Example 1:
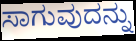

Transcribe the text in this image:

ಸಾಗುವುದನ್ನು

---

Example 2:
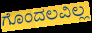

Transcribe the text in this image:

ಗೊಂದಲವಿಲ್ಲ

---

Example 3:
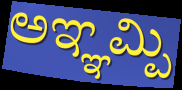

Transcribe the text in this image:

ಅಞ್ಞಮ್ಪಿ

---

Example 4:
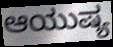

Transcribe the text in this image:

ಆಯುಷ್ಯ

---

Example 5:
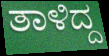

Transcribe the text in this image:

ತಾಳಿದ್ದ